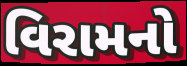
વિરામનો